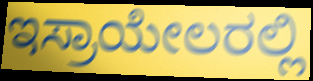
ಇಸ್ರಾಯೇಲರಲ್ಲಿ